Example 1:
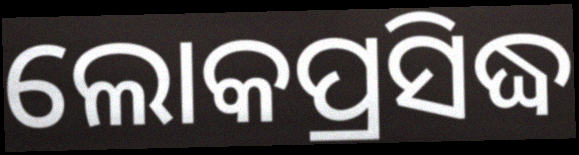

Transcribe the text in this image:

ଲୋକପ୍ରସିଦ୍ଧ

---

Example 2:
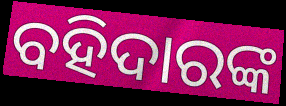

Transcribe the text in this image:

ବହିଦାରଙ୍କ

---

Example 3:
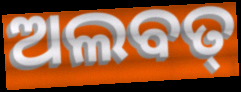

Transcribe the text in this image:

ଅଲବତ୍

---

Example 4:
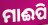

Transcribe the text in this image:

ମାଈପି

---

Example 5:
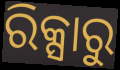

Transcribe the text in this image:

ରିକ୍ସାରୁ